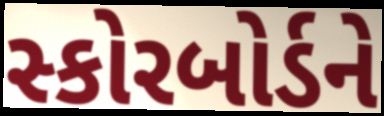
સ્કોરબોર્ડને